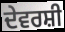
ਦੇਵਰਸ਼ੀ